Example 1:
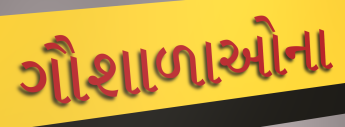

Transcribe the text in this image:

ગૌશાળાઓના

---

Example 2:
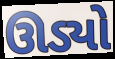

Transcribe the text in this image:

ઊડ્યો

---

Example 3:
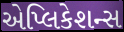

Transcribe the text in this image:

એપ્લિકેશન્સ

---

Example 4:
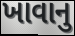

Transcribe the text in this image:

ખાવાનુ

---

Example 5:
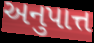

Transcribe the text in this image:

અનુપાત્ત